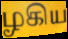
ழகிய